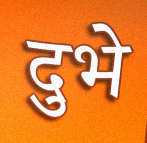
दुभे